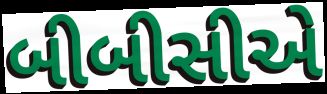
બીબીસીએ